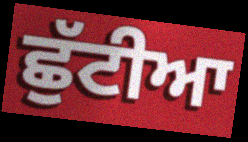
ਛੁੱਟੀਆ